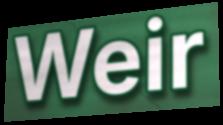
Weir